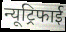
न्यूट्रिफाई